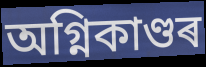
অগ্নিকাণ্ডৰ